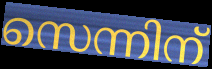
സെന്നിന്